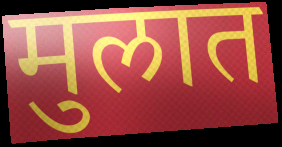
मुलात